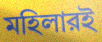
মহিলারই